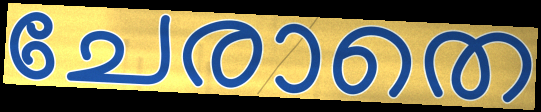
ചേരാതെ